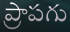
ప్రాపగు